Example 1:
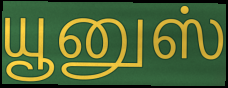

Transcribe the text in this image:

யூனுஸ்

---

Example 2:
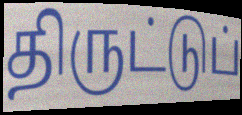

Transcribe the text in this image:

திருட்டுப்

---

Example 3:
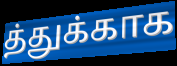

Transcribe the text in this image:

த்துக்காக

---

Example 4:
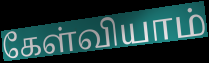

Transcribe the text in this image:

கேள்வியாம்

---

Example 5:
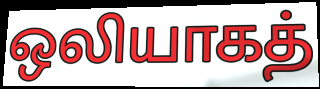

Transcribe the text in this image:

ஒலியாகத்